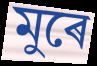
মুৰে